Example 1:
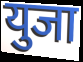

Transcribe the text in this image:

युजा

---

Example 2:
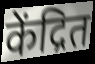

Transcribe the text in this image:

केंद्रित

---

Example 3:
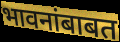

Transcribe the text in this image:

भावनांबाबत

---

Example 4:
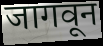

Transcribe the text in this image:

जागवून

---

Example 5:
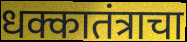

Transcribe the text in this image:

धक्कातंत्राचा